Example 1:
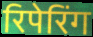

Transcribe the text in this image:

रिपेरिंग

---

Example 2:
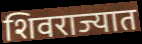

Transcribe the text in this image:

शिवराज्यात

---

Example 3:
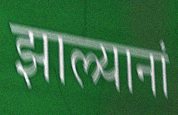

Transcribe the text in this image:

झाल्यानां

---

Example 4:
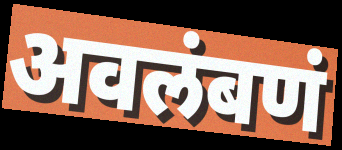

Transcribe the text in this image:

अवलंबणं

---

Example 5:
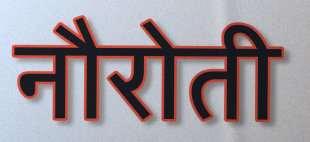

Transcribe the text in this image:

नौरोती